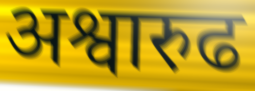
अश्वारुढ